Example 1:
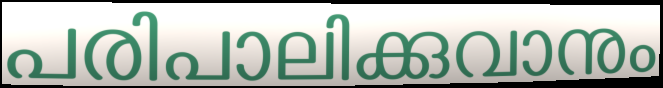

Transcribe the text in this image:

പരിപാലിക്കുവാനും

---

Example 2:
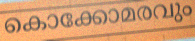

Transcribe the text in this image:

കൊക്കോമരവും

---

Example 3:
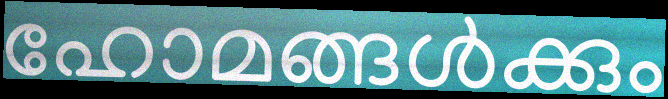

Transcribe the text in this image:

ഹോമങ്ങൾക്കും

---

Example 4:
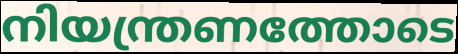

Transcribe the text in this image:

നിയന്ത്രണത്തോടെ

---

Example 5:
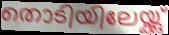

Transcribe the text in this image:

തൊടിയിലേയ്ക്കു്